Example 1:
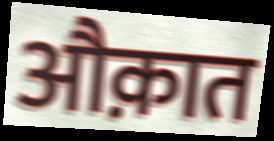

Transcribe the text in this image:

औक़ात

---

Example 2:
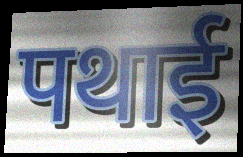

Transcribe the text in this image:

पथाई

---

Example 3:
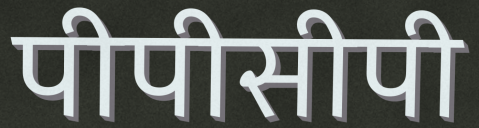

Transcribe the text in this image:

पीपीसीपी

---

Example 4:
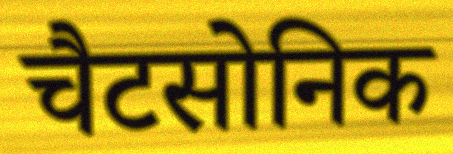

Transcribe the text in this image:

चैटसोनिक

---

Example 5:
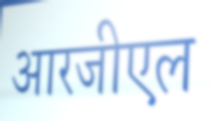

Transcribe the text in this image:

आरजीएल